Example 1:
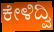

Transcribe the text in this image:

ಕೇಳಿದ್ವಿ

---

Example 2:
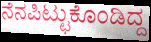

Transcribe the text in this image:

ನೆನಪಿಟ್ಟುಕೊಂಡಿದ್ದ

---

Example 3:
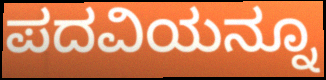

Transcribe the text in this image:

ಪದವಿಯನ್ನೂ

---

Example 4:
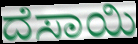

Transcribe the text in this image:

ದೆಸಾಯಿ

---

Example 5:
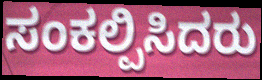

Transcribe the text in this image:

ಸಂಕಲ್ಪಿಸಿದರು